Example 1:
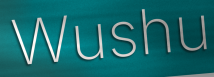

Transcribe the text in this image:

Wushu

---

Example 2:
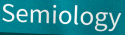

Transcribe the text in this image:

Semiology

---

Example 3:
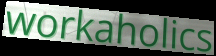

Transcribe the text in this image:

workaholics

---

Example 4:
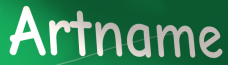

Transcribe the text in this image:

Artname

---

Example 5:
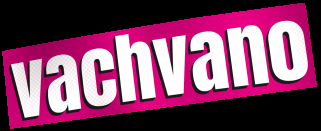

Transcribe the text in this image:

vachvano